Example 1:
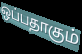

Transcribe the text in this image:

ஒப்பதாகும்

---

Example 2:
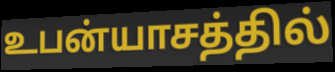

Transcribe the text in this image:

உபன்யாசத்தில்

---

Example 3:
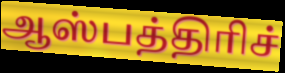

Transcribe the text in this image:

ஆஸ்பத்திரிச்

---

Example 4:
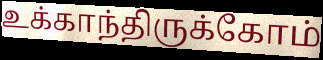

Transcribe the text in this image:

உக்காந்திருக்கோம்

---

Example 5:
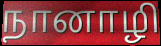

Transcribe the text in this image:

நானாழி